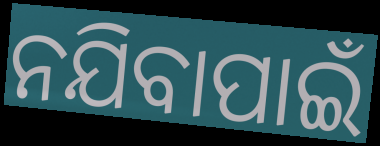
ନଯିବାପାଇଁ